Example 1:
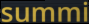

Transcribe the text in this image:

summi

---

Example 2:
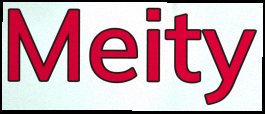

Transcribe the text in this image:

Meity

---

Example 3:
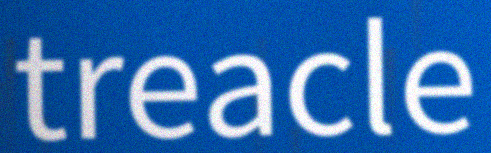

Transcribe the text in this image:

treacle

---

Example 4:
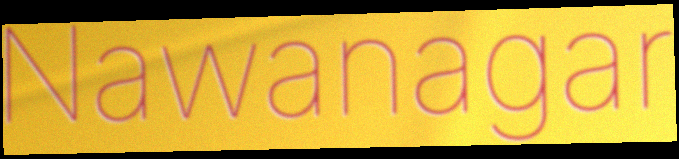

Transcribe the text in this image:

Nawanagar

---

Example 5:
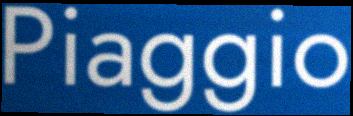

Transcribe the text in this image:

Piaggio